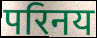
परिनय